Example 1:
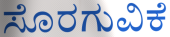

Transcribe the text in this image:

ಸೊರಗುವಿಕೆ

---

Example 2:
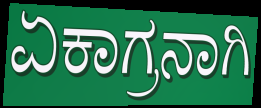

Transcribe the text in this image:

ಏಕಾಗ್ರನಾಗಿ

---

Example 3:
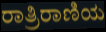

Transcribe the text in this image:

ರಾತ್ರಿರಾಣಿಯ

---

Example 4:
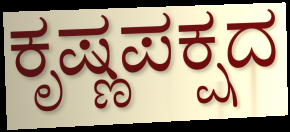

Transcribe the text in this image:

ಕೃಷ್ಣಪಕ್ಷದ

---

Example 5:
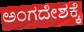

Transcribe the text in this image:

ಅಂಗದೇಶಕ್ಕೆ